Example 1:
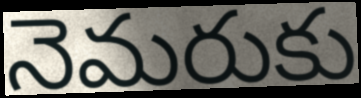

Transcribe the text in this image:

నెమరుకు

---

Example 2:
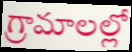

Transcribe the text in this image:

గ్రామాలల్లో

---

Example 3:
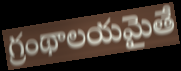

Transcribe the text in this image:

గ్రంథాలయమైతే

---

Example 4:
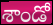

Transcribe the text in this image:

శాండో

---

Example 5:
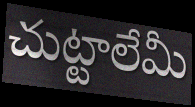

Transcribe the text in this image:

చుట్టాలేమీ